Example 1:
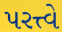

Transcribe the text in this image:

પરત્ત્વે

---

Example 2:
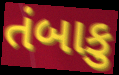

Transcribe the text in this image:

તંબાકુ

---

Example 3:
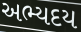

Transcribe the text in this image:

અભ્યદય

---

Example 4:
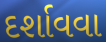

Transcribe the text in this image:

દર્શાવવા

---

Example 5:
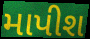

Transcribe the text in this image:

માપીશ